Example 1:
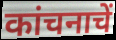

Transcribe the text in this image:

कांचनाचें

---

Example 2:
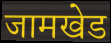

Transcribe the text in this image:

जामखेड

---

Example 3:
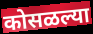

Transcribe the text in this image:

कोसळल्या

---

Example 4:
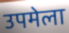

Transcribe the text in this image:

उपमेला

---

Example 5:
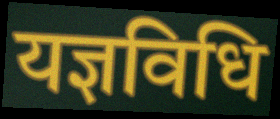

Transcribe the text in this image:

यज्ञविधि